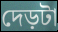
দেড়টা